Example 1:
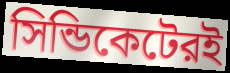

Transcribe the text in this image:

সিন্ডিকেটেরই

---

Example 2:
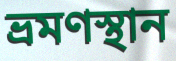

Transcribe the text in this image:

ভ্রমণস্থান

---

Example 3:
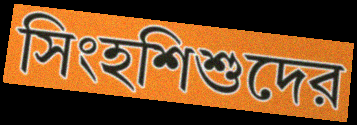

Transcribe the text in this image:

সিংহশিশুদের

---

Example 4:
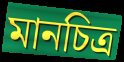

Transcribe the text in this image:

মানচিত্র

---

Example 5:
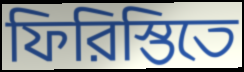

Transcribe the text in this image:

ফিরিস্তিতে